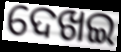
ଦେଖଇ